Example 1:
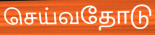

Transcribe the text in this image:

செய்வதோடு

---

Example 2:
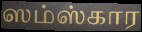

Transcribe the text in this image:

ஸம்ஸ்கார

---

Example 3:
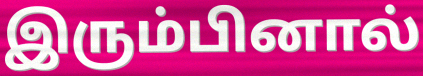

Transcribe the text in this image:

இரும்பினால்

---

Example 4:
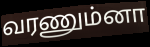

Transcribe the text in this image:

வரணும்னா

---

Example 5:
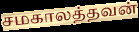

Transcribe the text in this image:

சமகாலத்தவன்